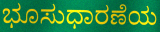
ಭೂಸುಧಾರಣೆಯ